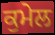
ਕੁਮੇਲ